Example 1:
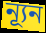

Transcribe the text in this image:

ন্যূন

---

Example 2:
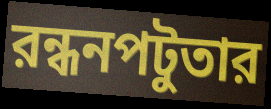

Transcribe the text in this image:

রন্ধনপটুতার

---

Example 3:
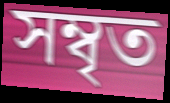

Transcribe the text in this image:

সম্বৃত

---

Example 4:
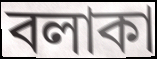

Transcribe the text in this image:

বলাকা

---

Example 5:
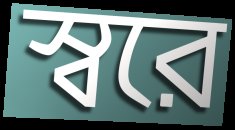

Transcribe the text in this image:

স্বরে